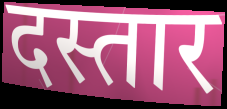
दस्तार